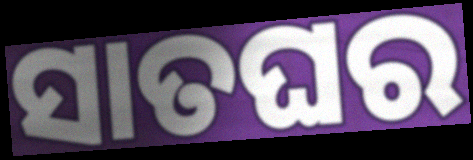
ସାତଘର